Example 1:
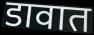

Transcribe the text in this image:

डावात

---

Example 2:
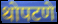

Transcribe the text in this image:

थोपटणे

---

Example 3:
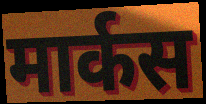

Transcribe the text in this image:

मार्कस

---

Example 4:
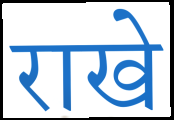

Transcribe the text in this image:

राखे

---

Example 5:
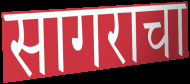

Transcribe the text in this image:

सागराचा